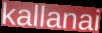
kallanai